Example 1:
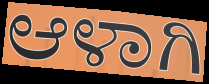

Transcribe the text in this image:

ಆಳಾಗಿ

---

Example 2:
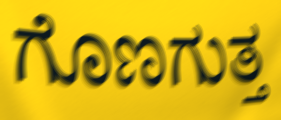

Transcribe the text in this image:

ಗೊಣಗುತ್ತ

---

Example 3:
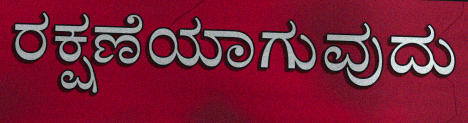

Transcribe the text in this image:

ರಕ್ಷಣೆಯಾಗುವುದು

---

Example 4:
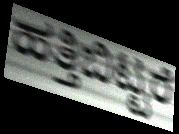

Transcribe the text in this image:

ಹತ್ತಿಬಿಟ್ಟರೆ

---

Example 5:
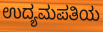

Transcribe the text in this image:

ಉದ್ಯಮಪತಿಯ